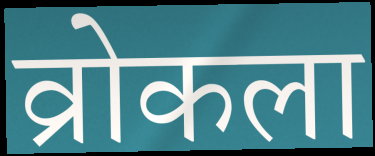
व्रोकला